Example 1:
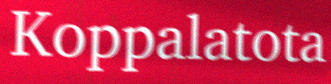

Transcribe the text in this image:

Koppalatota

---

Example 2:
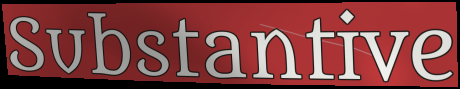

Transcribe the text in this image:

Substantive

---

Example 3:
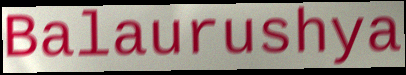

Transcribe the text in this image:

Balaurushya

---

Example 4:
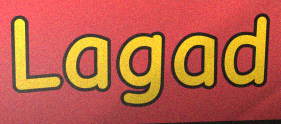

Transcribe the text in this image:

Lagad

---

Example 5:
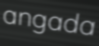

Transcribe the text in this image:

angada